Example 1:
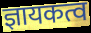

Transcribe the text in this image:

ज्ञायकत्व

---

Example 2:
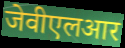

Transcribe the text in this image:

जेवीएलआर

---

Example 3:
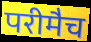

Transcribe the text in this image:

परीमैच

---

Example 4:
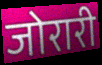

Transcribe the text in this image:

जोरारी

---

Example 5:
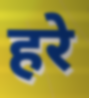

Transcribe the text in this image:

हरे